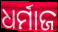
ଧର୍ମାଜ